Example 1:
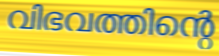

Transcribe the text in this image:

വിഭവത്തിന്റെ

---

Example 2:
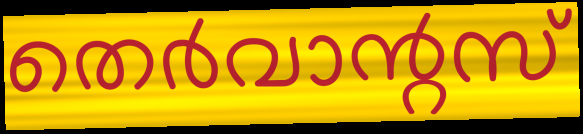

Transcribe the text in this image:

തെർവാന്റസ്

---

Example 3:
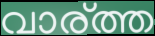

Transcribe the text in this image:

വാര്ത്ത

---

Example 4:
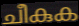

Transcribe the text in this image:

ചീകുക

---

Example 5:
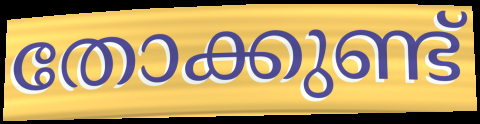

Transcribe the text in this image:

തോക്കുണ്ട്